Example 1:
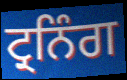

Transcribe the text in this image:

ਟ੍ਰਨਿੰਗ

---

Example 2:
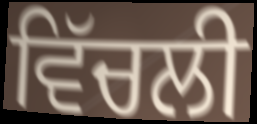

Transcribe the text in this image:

ਵਿੱਚਲੀ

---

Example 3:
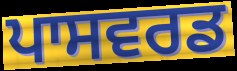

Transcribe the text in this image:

ਪਾਸਵਰਡ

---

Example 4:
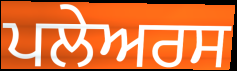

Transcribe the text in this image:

ਪਲੇਅਰਸ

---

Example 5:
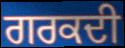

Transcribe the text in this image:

ਗਰਕਦੀ